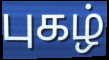
புகழ்